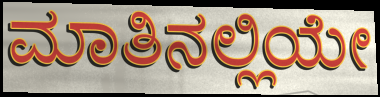
ಮಾತಿನಲ್ಲಿಯೇ